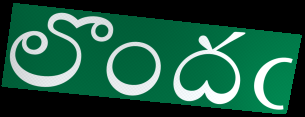
లొందఁ